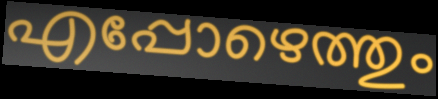
എപ്പോഴെത്തും